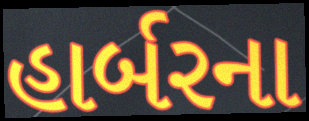
હાર્બરના